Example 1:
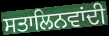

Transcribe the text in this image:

ਸਤਾਲਿਨਵਾਂਦੀ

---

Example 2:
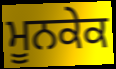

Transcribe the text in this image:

ਮੂਨਕੇਕ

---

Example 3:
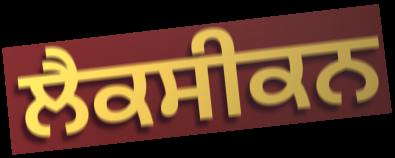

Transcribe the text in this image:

ਲੈਕਸੀਕਨ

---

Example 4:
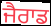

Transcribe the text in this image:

ਜੈਰਾਡ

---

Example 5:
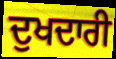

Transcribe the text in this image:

ਦੁਖਦਾਰੀ